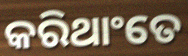
କରିଥାଂତେ